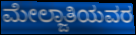
ಮೇಲ್ಜಾತಿಯವರ